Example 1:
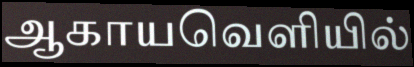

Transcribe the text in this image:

ஆகாயவெளியில்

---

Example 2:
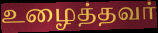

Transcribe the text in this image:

உழைத்தவர்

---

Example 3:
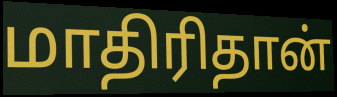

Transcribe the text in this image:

மாதிரிதான்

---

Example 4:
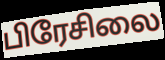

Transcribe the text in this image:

பிரேசிலை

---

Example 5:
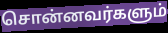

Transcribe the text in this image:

சொன்னவர்களும்